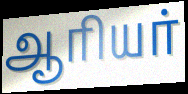
ஆரியர்